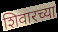
शिवारच्या